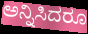
ಅನ್ನಿಸಿದರೂ